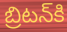
బ్రిటన్‌కి